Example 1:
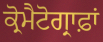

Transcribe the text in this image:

ਕ੍ਰੋਮੈਟੋਗ੍ਰਾਫ਼ਾਂ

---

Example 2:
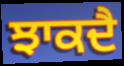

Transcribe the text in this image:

ਝਾਕਦੈ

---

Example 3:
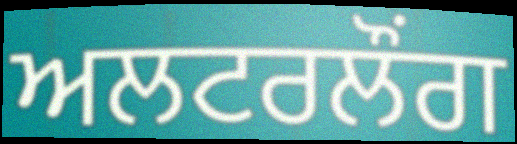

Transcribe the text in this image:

ਅਲਟਰਲੌਂਗ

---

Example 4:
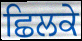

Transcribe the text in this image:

ਛਿਲਕੇ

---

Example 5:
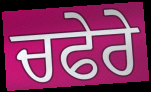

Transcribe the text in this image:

ਚਫੇਰੇ